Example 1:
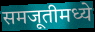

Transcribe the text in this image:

समजूतीमध्ये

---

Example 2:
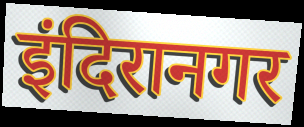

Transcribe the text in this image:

इंदिरानगर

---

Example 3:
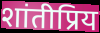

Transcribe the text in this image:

शांतीप्रिय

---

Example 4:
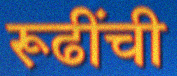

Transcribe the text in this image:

रूढींची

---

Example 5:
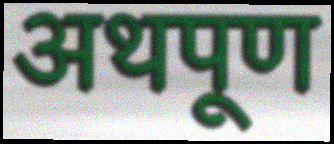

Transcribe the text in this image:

अथपूण